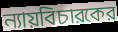
ন্যায়বিচারকের